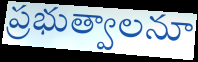
ప్రభుత్వాలనూ